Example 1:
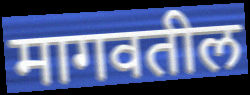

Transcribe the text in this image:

मागवतील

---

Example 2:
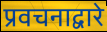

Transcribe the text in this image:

प्रवचनाद्वारे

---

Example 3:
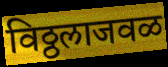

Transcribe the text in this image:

विठ्ठलाजवळ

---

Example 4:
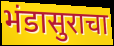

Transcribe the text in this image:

भंडासुराचा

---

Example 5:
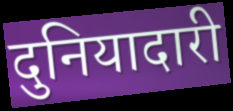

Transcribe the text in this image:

दुनियादारी